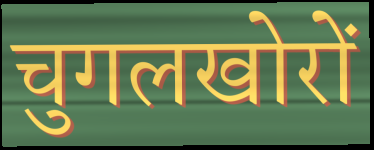
चुगलखोरों